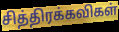
சித்திரக்கவிகள்